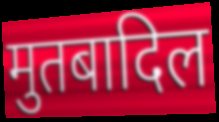
मुतबादिल